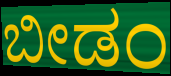
ಬೀಡಂ